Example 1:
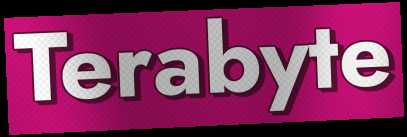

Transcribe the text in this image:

Terabyte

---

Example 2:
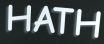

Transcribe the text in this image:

HATH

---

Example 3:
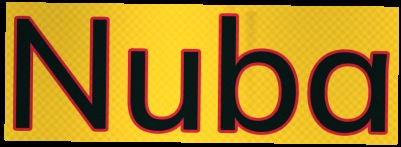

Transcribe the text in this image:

Nuba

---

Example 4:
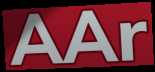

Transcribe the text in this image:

AAr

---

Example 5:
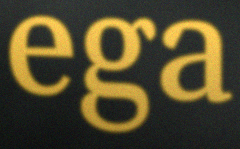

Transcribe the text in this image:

ega